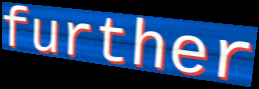
further